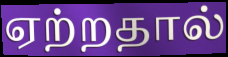
ஏற்றதால்